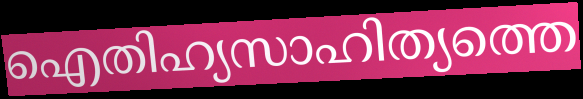
ഐതിഹ്യസാഹിത്യത്തെ